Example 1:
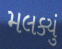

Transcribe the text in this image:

મલક્યું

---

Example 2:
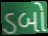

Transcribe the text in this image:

ડબો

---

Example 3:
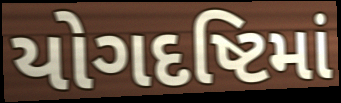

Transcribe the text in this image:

યોગદષ્ટિમાં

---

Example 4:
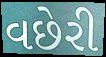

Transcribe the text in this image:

વછેરી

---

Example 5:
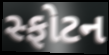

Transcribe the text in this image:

સ્ફોટન